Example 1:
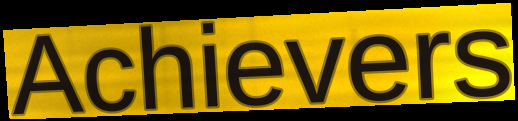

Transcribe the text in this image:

Achievers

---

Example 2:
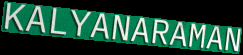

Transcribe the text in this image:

KALYANARAMAN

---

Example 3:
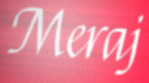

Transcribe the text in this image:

Meraj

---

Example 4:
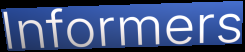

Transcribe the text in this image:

Informers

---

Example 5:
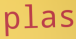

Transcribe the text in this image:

plas